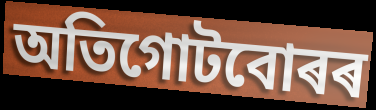
অতিগোটবোৰৰ